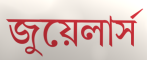
জুয়েলার্স